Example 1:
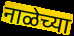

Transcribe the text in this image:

नाळेच्या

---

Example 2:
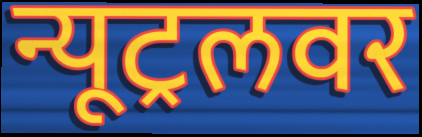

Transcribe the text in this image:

न्यूट्रलवर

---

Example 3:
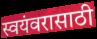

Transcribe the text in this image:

स्वयंवरासाठी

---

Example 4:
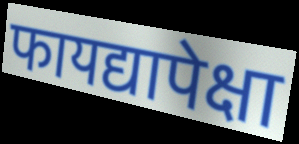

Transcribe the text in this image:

फायद्यापेक्षा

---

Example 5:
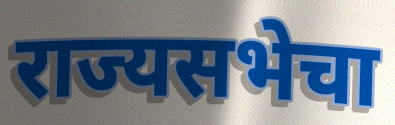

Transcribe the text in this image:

राज्यसभेचा